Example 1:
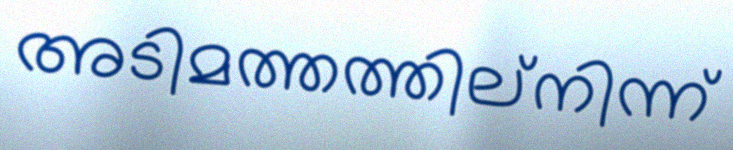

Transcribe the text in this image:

അടിമത്തത്തില്നിന്ന്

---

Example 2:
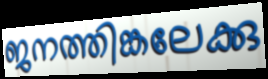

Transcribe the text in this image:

ജനത്തിങ്കലേക്കു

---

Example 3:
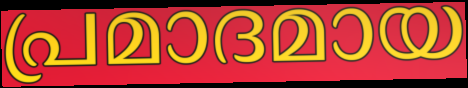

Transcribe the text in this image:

പ്രമാദമായ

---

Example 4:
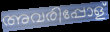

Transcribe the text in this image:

അവരിപ്പോള്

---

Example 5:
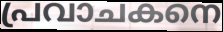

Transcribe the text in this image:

പ്രവാചകനെ